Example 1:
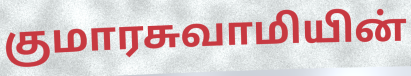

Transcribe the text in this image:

குமாரசுவாமியின்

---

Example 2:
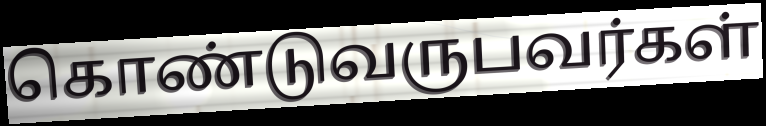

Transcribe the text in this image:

கொண்டுவருபவர்கள்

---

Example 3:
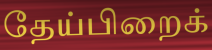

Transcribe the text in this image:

தேய்பிறைக்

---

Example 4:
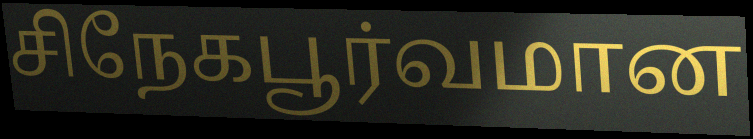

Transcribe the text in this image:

சிநேகபூர்வமான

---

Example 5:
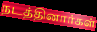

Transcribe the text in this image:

நடத்தினார்கள்